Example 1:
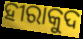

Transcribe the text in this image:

ହୀରାକୁଦ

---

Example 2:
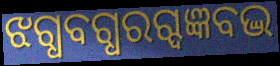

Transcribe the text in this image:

ଝଗ୍ଧବଗ୍ଧରଗ୍ଦଜ୍ଞବଦ୍ଭ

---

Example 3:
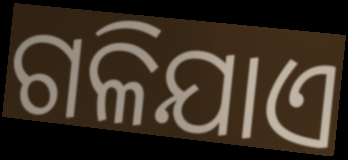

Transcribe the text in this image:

ଗଳିଯାଏ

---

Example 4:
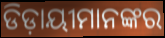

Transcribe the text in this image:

ଡିଡ଼ାୟୀମାନଙ୍କର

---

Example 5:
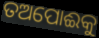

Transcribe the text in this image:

ତଅପୋଈକୁ